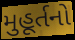
મુહૂર્તનો